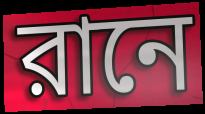
রানে